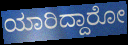
ಯಾರಿದ್ದಾರೋ